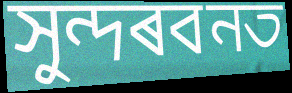
সুন্দৰবনত